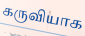
கருவியாக